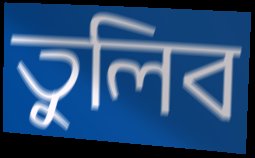
তুলিব